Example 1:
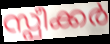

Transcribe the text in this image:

സ്പീക്കർ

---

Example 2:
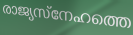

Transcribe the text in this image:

രാജ്യസ്‌നേഹത്തെ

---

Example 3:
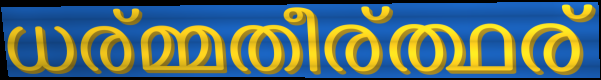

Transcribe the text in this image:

ധര്മ്മതീര്ത്ഥര്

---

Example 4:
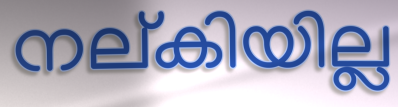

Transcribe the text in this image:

നല്കിയില്ല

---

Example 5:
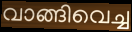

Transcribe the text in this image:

വാങ്ങിവെച്ച